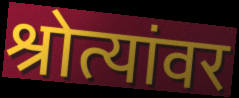
श्रोत्यांवर